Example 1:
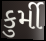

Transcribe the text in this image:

કુર્મી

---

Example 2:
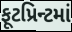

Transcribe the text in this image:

ફૂટપ્રિન્ટમાં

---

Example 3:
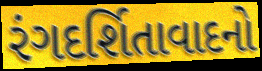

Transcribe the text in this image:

રંગદર્શિતાવાદનો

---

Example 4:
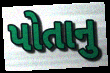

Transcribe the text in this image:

પોતાનુ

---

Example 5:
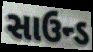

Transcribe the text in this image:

સાઉન્ડ